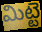
మిట్టె